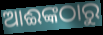
ଆଈଙ୍କଠାରୁ